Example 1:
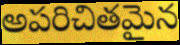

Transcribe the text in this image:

అపరిచితమైన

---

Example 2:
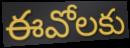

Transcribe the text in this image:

ఈవోలకు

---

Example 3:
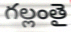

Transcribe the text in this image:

గల్లంతై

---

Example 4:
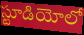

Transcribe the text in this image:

స్టూడియోలో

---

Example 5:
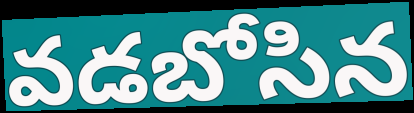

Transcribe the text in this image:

వడబోసిన